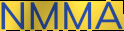
NMMA